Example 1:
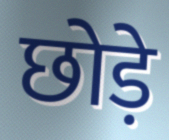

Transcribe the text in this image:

छोड़े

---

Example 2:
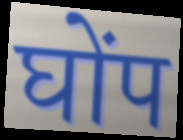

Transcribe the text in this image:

घोंप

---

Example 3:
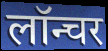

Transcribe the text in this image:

लॉन्चर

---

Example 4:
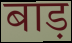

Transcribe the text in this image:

बाड़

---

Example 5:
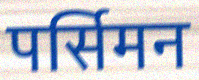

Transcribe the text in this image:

पर्सिमन